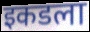
इकडला